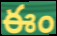
ఈం